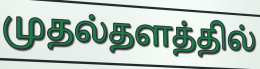
முதல்தளத்தில்